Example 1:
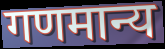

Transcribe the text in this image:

गणमान्य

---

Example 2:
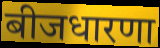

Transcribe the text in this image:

बीजधारणा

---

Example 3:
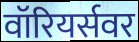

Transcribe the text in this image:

वॉरियर्सवर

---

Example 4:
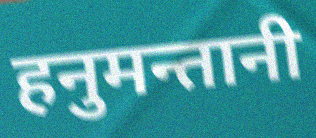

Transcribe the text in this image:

हनुमन्तानी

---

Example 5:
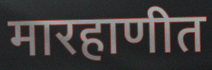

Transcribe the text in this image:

मारहाणीत